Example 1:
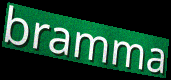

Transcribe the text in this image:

bramma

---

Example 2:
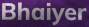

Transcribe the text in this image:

Bhaiyer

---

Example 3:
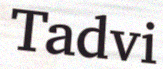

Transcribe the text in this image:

Tadvi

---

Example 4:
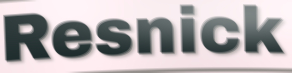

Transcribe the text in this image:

Resnick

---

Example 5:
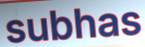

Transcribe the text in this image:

subhas